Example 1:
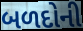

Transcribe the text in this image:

બળદોની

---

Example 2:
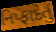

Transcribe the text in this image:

નિપ્ફાદેતું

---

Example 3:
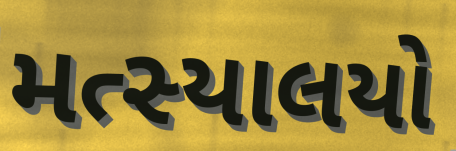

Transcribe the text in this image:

મત્સ્યાલયો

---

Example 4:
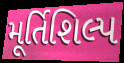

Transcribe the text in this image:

મૂર્તિશિલ્પ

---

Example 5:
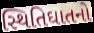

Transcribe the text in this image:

સ્થિતિઘાતનો